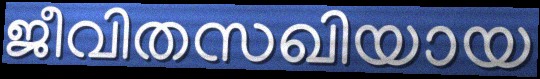
ജീവിതസഖിയായ